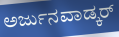
ಅರ್ಜುನವಾಡ್ಕರ್